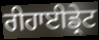
ਰੀਹਾਈਡ੍ਰੇਟ